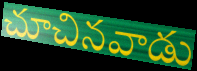
చూచినవాడు